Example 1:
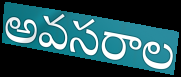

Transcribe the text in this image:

అవసరాల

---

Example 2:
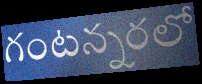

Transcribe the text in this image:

గంటన్నరలో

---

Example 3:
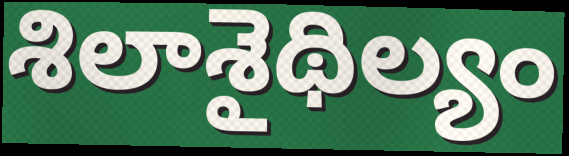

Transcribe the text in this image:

శిలాశైథిల్యం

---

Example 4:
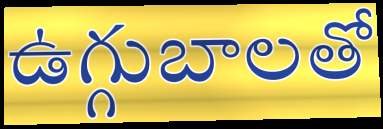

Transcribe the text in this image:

ఉగ్గుబాలతో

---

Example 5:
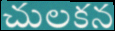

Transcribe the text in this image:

చులకన